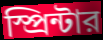
স্প্রিন্টার